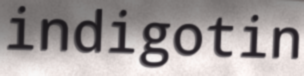
indigotin